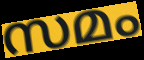
സമം